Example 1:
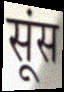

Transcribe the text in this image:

सूंस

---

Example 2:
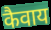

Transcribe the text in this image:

कैवाय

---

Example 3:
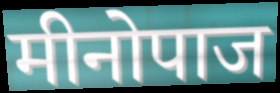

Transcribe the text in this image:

मीनोपाज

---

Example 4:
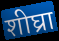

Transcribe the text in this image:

शीघ्रा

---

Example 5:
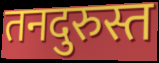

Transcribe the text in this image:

तनदुरुस्त